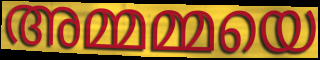
അമ്മമ്മയെ